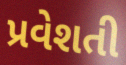
પ્રવેશતી